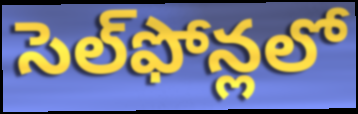
సెల్‌ఫోన్లలో